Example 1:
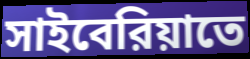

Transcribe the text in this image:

সাইবেরিয়াতে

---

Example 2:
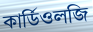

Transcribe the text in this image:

কার্ডিওলজি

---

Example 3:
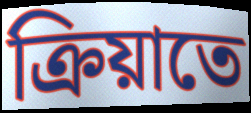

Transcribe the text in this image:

ক্রিয়াতে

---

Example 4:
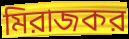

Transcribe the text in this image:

মিরাজকর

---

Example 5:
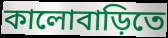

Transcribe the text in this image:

কালোবাড়িতে